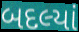
બદલ્યાં